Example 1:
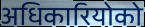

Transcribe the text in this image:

अधिकारियोको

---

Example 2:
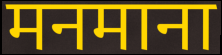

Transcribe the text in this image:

मनमाना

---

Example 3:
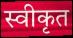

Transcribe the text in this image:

स्‍वीकृत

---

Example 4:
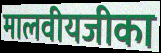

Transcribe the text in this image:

मालवीयजीका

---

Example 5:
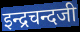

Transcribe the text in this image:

इन्द्रचन्दजी